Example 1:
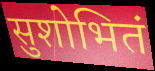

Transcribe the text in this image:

सुशोभितं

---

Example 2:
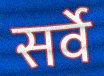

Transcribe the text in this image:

सर्वे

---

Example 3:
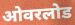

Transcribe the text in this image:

ओवरलोड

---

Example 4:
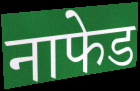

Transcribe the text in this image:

नाफेड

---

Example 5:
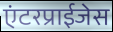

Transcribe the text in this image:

एंटरप्राईजेस